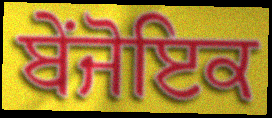
ਬੇਂਜੋਇਕ